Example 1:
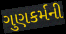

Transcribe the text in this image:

ગુણકર્મની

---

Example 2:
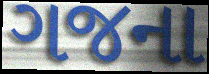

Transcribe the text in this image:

ગજના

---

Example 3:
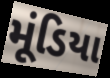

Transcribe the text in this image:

મૂંડિયા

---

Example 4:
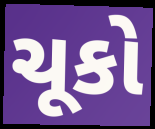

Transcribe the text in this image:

ચૂકો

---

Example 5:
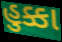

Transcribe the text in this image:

હુક્કા